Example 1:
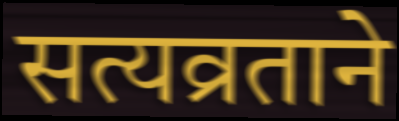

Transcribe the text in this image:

सत्यव्रताने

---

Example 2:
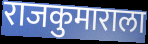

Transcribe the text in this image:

राजकुमाराला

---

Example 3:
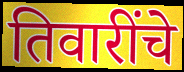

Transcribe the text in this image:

तिवारींचे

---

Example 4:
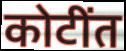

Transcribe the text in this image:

कोटींत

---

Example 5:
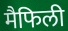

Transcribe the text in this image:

मैफिली